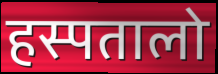
हस्पतालो